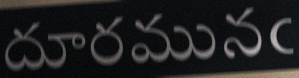
దూరమునఁ